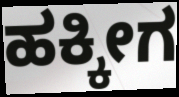
ಹಕ್ಕೀಗ